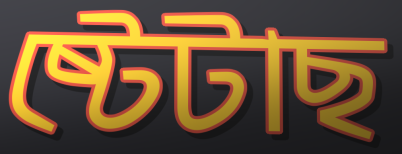
ষ্টেটাছ